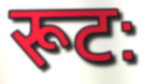
रूटः